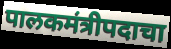
पालकमंत्रीपदाचा